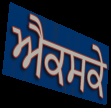
ਐਕਸਕੇ